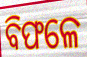
ବିଫଳେ